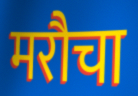
मरौचा